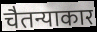
चैतन्याकार